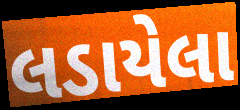
લડાયેલા